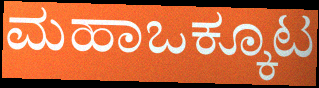
ಮಹಾಒಕ್ಕೂಟ